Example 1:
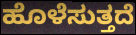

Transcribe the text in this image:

ಹೊಳೆಸುತ್ತದೆ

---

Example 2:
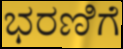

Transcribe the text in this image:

ಭರಣಿಗೆ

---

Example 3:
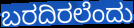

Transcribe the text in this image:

ಬರದಿರಲೆಂದು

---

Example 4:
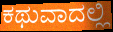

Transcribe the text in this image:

ಕಥುವಾದಲ್ಲಿ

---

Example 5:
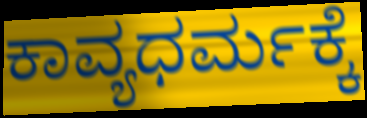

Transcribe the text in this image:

ಕಾವ್ಯಧರ್ಮಕ್ಕೆ